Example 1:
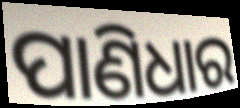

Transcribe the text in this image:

ପାଣିଧାର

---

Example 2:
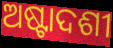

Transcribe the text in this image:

ଅଷ୍ଟାଦଶୀ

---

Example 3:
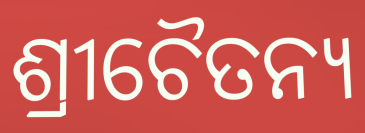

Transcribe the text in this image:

ଶ୍ରୀଚୈତନ୍ୟ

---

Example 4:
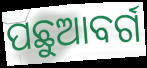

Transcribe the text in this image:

ପଛୁଆବର୍ଗ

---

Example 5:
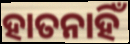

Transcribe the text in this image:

ହାତନାହିଁ